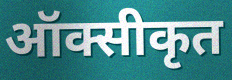
ऑक्सीकृत